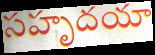
సహృదయా